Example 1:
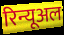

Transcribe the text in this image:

रिन्यूअल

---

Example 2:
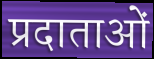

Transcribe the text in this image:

प्रदाताओं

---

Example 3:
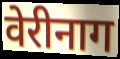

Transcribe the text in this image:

वेरीनाग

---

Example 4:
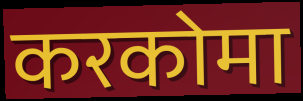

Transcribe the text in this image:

करकोमा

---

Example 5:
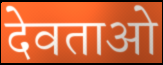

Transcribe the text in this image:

देवताओ